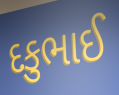
દકુભાઈ